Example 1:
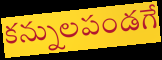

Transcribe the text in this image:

కన్నులపండగే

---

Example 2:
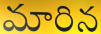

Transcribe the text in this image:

మారిన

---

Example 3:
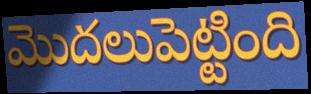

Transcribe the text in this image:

మొదలుపెట్టింది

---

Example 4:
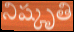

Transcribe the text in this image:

నిష్కృతి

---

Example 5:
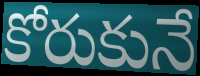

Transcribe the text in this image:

కోరుకునే